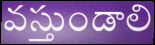
వస్తుండాలి